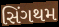
સિંગથમ